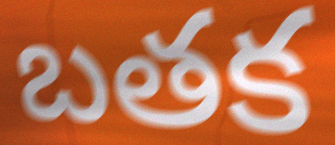
బతక